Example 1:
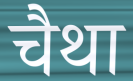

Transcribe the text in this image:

चैथा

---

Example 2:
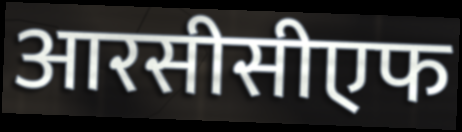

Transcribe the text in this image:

आरसीसीएफ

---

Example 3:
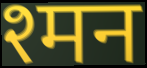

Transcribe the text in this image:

श्मन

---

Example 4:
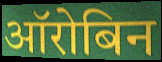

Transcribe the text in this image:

ऑरोबिन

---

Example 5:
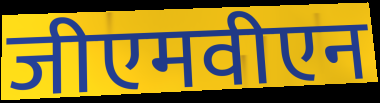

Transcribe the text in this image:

जीएमवीएन